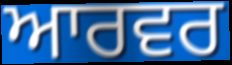
ਆਰਵਰ